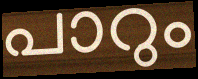
പാറും